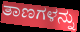
ತಾಣಗಳನ್ನು